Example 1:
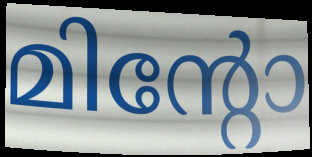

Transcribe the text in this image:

മിന്റോ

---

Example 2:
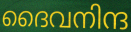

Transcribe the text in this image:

ദൈവനിന്ദ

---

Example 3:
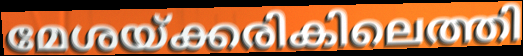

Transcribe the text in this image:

മേശയ്ക്കരികിലെത്തി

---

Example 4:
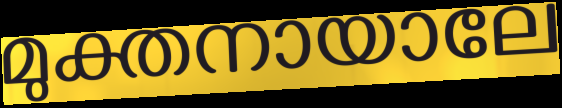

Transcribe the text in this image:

മുക്തനായാലേ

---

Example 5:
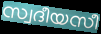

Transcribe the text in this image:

സ്വദീയസീ